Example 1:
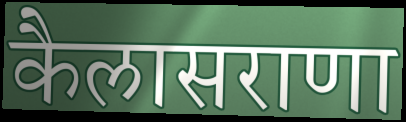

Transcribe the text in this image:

कैलासराणा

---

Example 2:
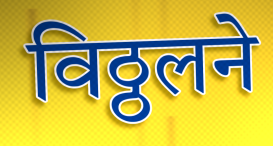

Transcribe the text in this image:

विठ्ठलने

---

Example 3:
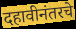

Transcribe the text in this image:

दहावीनंतरचे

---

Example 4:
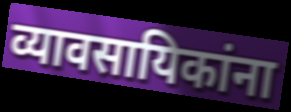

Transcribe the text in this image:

व्यावसायिकांना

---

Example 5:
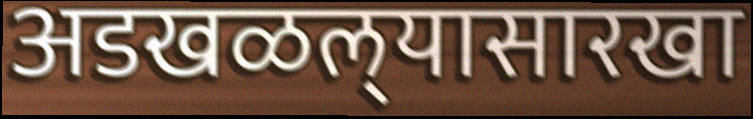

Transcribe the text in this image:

अडखळल्यासारखा